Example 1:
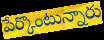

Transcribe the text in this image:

పేర్కొంటున్నారు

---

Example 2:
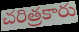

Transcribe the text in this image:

చరిత్రకారు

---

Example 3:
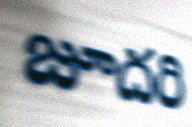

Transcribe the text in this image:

జూదరి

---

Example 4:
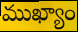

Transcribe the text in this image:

ముఖ్యాం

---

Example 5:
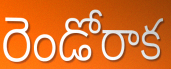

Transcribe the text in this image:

రెండోరాక